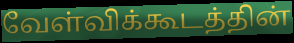
வேள்விக்கூடத்தின்